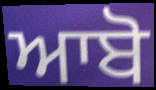
ਆਬੋ